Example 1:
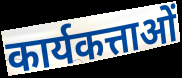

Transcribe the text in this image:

कार्यकत्ताओं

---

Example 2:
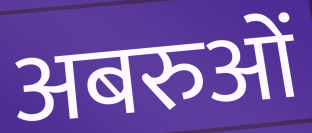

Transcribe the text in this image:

अबरुओं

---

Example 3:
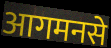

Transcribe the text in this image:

आगमनसे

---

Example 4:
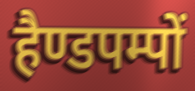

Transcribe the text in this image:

हैण्डपम्पों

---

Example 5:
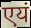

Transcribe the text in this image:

एयं